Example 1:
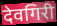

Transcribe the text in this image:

देवगिरी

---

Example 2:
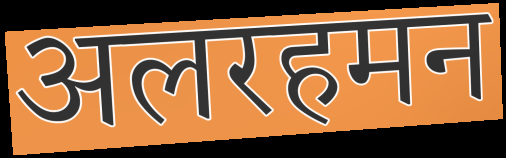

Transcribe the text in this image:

अलरहमन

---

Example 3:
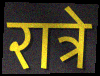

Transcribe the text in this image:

रात्रे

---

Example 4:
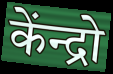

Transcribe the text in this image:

केंन्द्रो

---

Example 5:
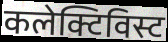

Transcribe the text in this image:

कलेक्टिविस्ट